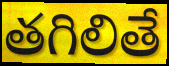
తగిలితే